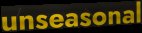
unseasonal